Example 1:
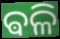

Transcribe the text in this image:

ଵଳି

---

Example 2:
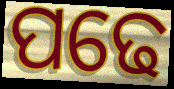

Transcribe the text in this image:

ପଢେ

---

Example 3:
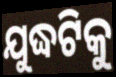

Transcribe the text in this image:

ଯୁଦ୍ଧଟିକୁ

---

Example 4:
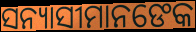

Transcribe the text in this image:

ସନ୍ୟାସୀମାନଙେକ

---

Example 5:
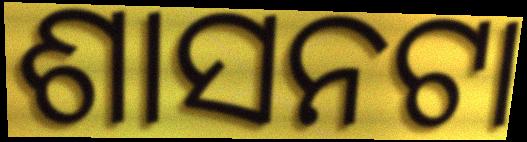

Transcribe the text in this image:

ଶାସନଟା